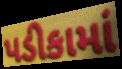
પડીકામાં